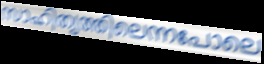
സാഹിത്യത്തിലെന്നപോലെ